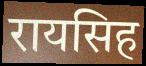
रायसिह